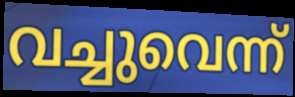
വച്ചുവെന്ന്